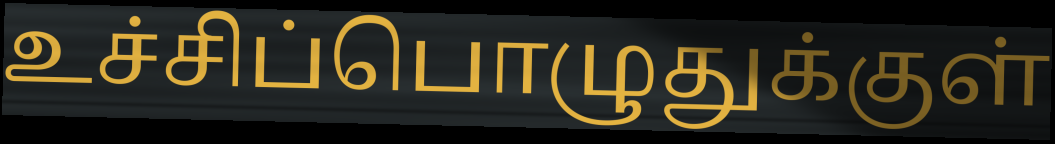
உச்சிப்பொழுதுக்குள்